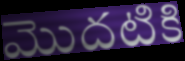
మొదటికి